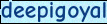
deepigoyal